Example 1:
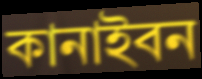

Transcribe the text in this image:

কানাইবন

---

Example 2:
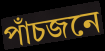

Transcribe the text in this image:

পাঁচজনে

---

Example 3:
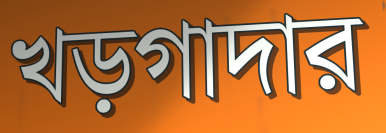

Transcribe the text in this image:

খড়গাদার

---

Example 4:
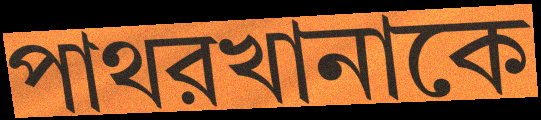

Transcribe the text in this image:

পাথরখানাকে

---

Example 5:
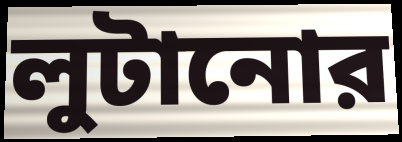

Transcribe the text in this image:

লুটানোর